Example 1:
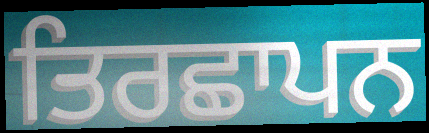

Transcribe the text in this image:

ਤਿਰਛਾਪਨ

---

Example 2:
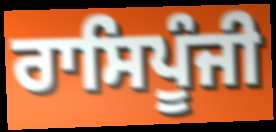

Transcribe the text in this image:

ਰਾਸਿਪੂੰਜੀ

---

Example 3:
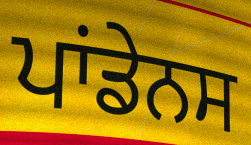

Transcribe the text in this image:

ਪਾਂਡੇਨਸ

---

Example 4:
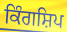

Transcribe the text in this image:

ਕਿੰਗਸ਼ਿਪ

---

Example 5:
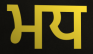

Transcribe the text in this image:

ਮਧ